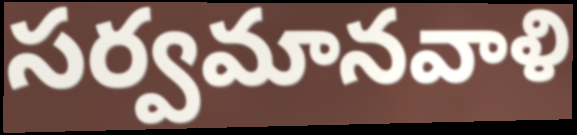
సర్వమానవాళి